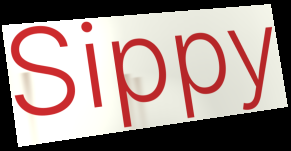
Sippy